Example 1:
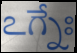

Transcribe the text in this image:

ఽగ్నేః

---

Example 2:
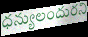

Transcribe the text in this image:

ధన్యులందురని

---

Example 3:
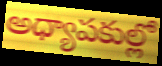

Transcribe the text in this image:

అధ్యాపకుల్లో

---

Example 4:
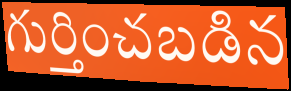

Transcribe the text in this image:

గుర్తించబడిన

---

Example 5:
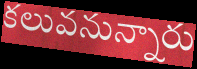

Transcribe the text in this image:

కలువనున్నారు